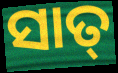
ସାତ୍